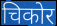
चिकोर